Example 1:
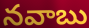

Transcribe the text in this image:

నవాబు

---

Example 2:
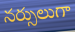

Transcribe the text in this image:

నర్సులుగా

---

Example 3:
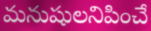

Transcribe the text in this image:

మనుషులనిపించే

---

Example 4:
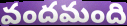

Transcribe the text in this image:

వందమంది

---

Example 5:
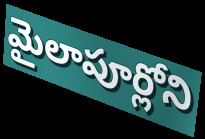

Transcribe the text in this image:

మైలాపూర్లోని